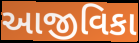
આજીવિકા